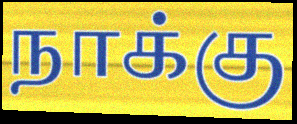
நாக்கு